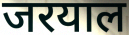
जरयाल